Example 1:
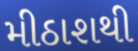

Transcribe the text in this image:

મીઠાશથી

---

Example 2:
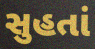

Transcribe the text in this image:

સુહતાં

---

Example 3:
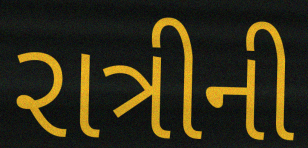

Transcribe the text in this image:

રાત્રીની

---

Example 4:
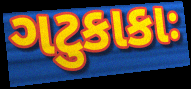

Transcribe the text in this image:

ગટુકાકાઃ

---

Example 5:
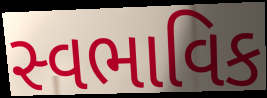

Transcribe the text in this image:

સ્વભાવિક